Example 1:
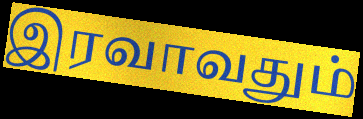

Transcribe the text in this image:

இரவாவதும்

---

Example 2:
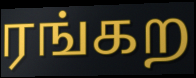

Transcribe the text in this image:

ரங்கற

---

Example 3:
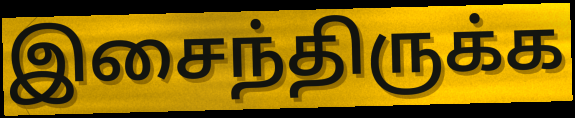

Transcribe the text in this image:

இசைந்திருக்க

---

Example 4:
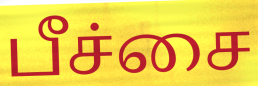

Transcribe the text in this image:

பீச்சை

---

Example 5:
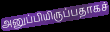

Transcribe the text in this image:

அனுப்பியிருப்பதாகச்